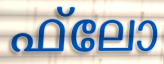
ഫ്‌ലോ